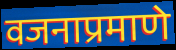
वजनाप्रमाणे